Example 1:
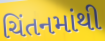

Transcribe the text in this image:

ચિંતનમાંથી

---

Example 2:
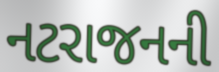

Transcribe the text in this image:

નટરાજનની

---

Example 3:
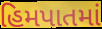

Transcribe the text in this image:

હિમપાતમાં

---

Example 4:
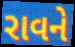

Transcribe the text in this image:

રાવને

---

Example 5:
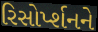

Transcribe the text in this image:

રિસોર્પ્શનને